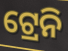
ଟ୍ରେନି